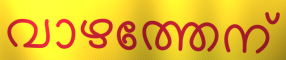
വാഴത്തേന്